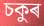
চকুৰ